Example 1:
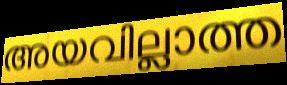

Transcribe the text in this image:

അയവില്ലാത്ത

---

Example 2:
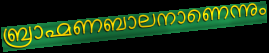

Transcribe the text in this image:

ബ്രാഹ്മണബാലനാണെന്നും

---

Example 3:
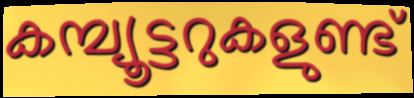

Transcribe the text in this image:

കമ്പ്യൂട്ടറുകളുണ്ട്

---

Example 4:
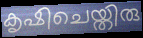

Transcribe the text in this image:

കൃഷിചെയ്തിരു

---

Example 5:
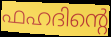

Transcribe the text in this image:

ഫഹദിന്റെ